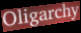
Oligarchy